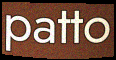
patto